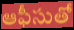
ఆఫీసుతో